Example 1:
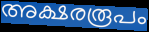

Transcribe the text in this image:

അക്ഷരരൂപം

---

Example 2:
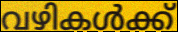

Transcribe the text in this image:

വഴികൾക്ക്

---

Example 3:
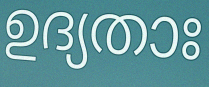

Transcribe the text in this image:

ഉദ്യതാഃ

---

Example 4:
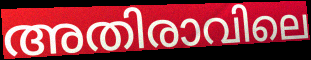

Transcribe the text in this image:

അതിരാവിലെ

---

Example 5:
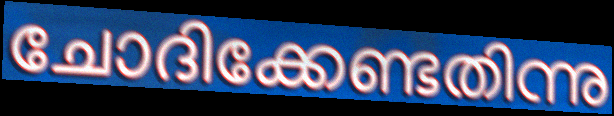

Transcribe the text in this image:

ചോദിക്കേണ്ടതിന്നു